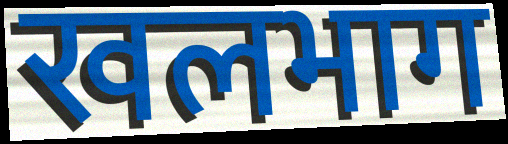
खलभाग